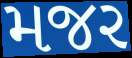
મજર